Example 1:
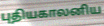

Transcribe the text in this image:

புதியகாலனிய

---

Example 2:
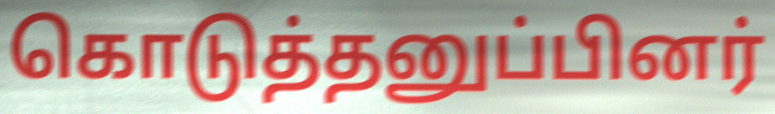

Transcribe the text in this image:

கொடுத்தனுப்பினர்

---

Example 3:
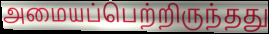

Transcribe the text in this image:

அமையப்பெற்றிருந்தது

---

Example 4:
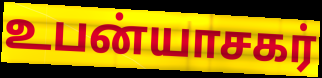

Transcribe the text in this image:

உபன்யாசகர்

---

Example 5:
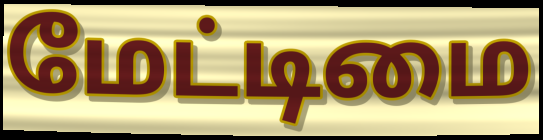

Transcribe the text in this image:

மேட்டிமை